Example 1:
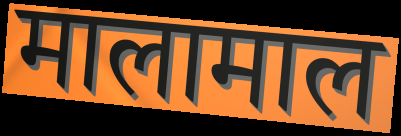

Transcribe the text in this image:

मालामाल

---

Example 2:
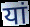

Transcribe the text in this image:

यां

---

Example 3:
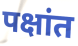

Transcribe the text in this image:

पक्षांत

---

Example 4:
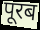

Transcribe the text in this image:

पूरब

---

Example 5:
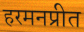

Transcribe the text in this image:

हरमनप्रीत